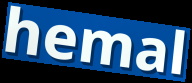
hemal